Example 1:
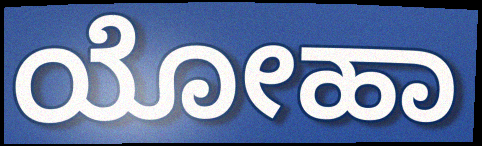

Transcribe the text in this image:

ಯೋಹಾ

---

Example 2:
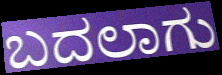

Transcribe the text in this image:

ಬದಲಾಗು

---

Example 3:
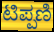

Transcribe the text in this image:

ಟಿಪ್ಪಣಿ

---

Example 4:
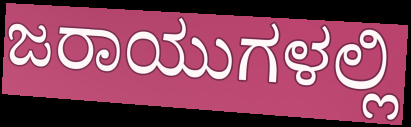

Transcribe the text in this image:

ಜರಾಯುಗಳಲ್ಲಿ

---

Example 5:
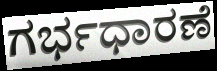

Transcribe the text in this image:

ಗರ್ಭಧಾರಣೆ